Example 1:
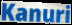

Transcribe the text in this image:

Kanuri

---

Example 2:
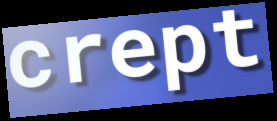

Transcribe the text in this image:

crept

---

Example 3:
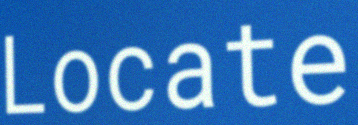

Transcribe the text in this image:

Locate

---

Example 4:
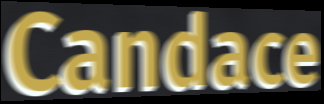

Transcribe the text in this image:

Candace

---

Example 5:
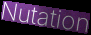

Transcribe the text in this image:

Nutation